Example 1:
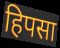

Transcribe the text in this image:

हिपसा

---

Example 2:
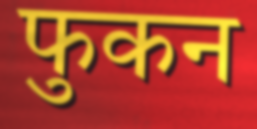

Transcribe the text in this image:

फुकन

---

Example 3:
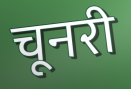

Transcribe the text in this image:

चूनरी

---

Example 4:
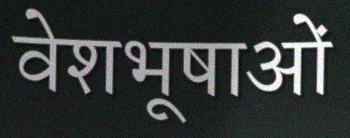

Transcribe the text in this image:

वेशभूषाओं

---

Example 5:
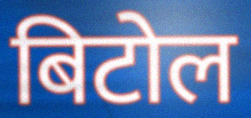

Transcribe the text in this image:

बिटोल